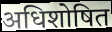
अधिशोषित